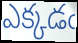
ఎక్కడఁ